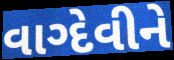
વાગ્દેવીને